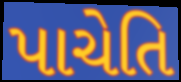
પાચેતિ